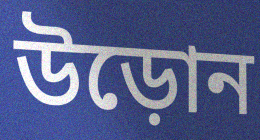
উড়োন